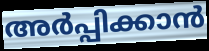
അർപ്പിക്കാൻ